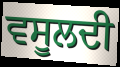
ਵਸੂਲਦੀ